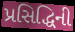
પ્રસિદ્ધિની